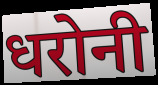
धरोनी